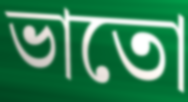
ভাতো